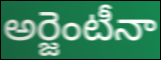
అర్జెంటీనా